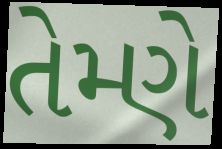
તેમ્ણે